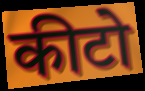
कीटो